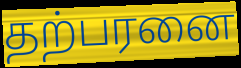
தற்பரனை